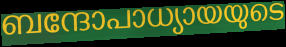
ബന്ദോപാധ്യായയുടെ